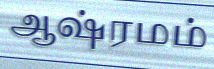
ஆஷ்ரமம்